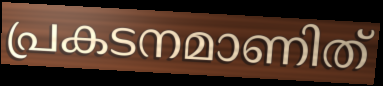
പ്രകടനമാണിത്